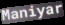
Maniyar